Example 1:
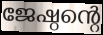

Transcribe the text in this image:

ജേഷ്ഠന്റെ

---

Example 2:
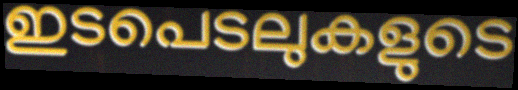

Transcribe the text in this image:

ഇടപെടലുകളുടെ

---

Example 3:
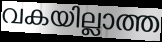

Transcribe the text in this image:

വകയില്ലാത്ത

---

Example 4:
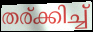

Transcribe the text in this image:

തര്ക്കിച്ച്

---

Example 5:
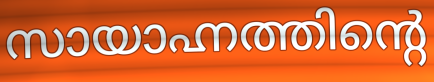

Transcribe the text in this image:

സായാഹ്നത്തിന്റെ